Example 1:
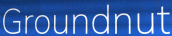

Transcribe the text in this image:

Groundnut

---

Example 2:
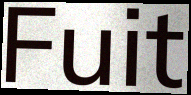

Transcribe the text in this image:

Fuit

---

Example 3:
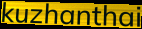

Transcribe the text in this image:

kuzhanthai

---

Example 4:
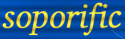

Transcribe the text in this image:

soporific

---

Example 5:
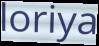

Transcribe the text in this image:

loriya